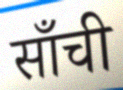
साँची